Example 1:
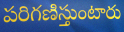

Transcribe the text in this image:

పరిగణిస్తుంటారు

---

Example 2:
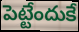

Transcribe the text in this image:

పెట్టేందుకే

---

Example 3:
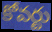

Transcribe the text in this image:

కోవర్టు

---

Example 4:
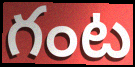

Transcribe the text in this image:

గంట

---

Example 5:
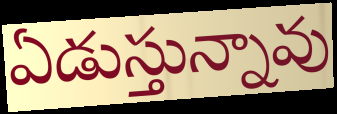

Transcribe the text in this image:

ఏడుస్తున్నావు